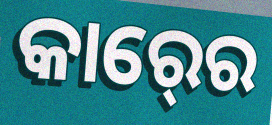
କାର୍‍ରେ